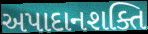
અપાદાનશક્તિ